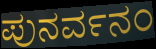
ಪುನರ್ವನಂ